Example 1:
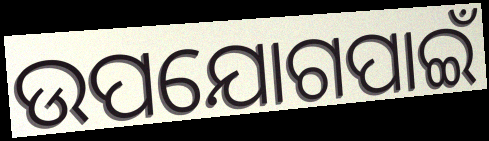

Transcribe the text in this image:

ଉପଯୋଗପାଇଁ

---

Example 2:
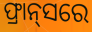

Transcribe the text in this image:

ଫ୍ରାନ୍‌ସରେ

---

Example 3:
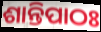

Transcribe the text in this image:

ଶାନ୍ତିପାଠଃ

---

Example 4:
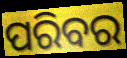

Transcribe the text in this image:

ପରିବର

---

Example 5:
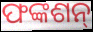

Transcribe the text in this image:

ଫଙ୍କଶନ୍